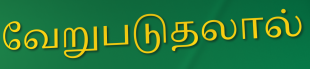
வேறுபடுதலால்